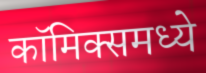
कॉमिक्समध्ये